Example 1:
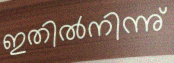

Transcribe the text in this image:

ഇതിൽനിന്നു്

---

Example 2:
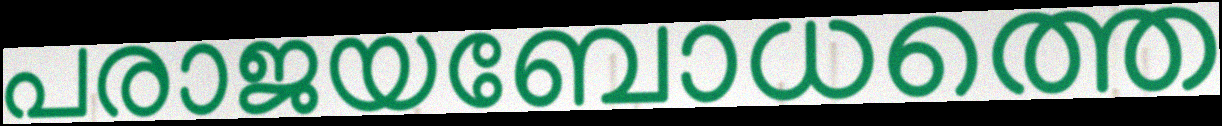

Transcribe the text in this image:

പരാജയബോധത്തെ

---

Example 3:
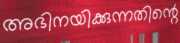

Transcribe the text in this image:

അഭിനയിക്കുന്നതിന്റെ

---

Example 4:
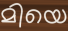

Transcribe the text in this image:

മിയെ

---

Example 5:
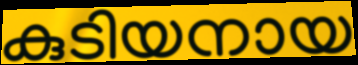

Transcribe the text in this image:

കുടിയനായ